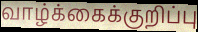
வாழ்க்கைக்குறிப்பு